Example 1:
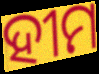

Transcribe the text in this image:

ହୀମ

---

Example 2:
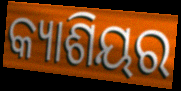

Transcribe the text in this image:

କ୍ୟାଶିୟର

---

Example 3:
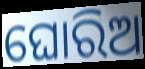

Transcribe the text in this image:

ଘୋରିଅ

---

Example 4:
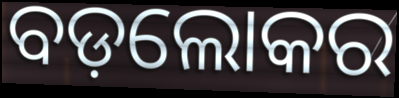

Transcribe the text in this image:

ବଡ଼ଲୋକର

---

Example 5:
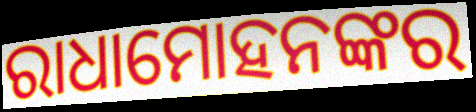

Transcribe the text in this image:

ରାଧାମୋହନଙ୍କର